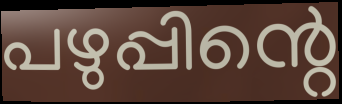
പഴുപ്പിന്റെ